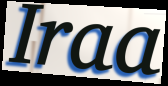
Iraa